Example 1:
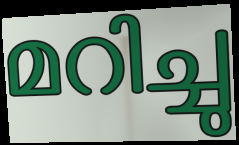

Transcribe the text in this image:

മറിച്ചു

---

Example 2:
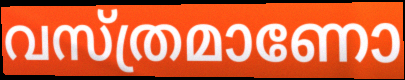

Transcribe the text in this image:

വസ്ത്രമാണോ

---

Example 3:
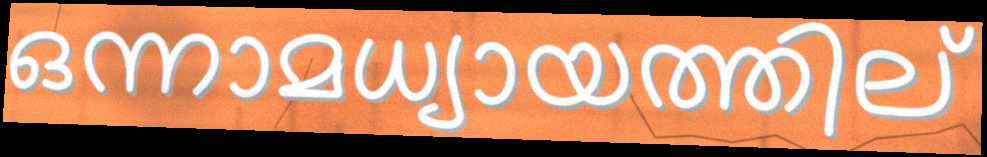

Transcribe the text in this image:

ഒന്നാമധ്യായത്തില്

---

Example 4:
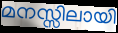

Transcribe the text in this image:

മനസ്സിലായി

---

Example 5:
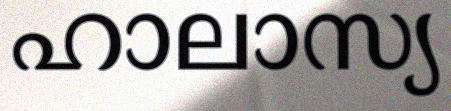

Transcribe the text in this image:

ഹാലാസ്യ